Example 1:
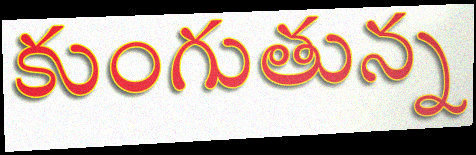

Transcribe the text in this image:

కుంగుతున్న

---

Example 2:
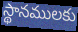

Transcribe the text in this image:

స్థానములకు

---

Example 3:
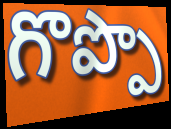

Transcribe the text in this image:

గొప్పొ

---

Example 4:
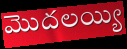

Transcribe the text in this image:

మొదలయ్యి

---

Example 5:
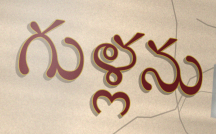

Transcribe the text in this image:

గుళ్లను